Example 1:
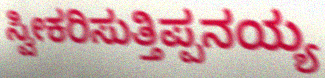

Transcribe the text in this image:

ಸ್ವೀಕರಿಸುತ್ತಿಪ್ಪನಯ್ಯ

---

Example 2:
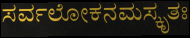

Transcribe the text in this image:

ಸರ್ವಲೋಕನಮಸ್ಕೃತಃ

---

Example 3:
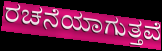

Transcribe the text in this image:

ರಚನೆಯಾಗುತ್ತವೆ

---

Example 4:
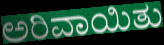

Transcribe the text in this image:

ಅರಿವಾಯಿತು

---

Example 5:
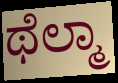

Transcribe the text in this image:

ಥೆಲ್ಮಾ